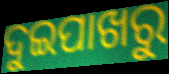
ଦୁଇପାଖରୁ